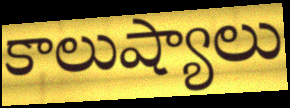
కాలుష్యాలు